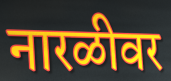
नारळीवर